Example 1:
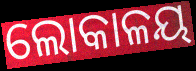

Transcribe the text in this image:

ଲୋକାଳୟ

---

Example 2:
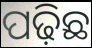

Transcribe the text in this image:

ପଢ଼ିଛ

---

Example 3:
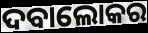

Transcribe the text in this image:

ଦବାଲୋକର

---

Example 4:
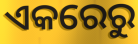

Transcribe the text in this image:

ଏକରେରୁ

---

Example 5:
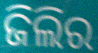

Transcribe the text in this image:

ଜିଲିର